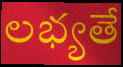
లభ్యతే